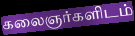
கலைஞர்களிடம்